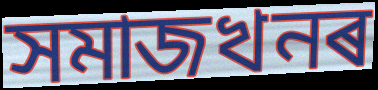
সমাজখনৰ